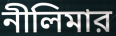
নীলিমার